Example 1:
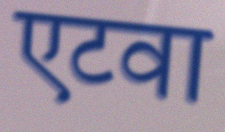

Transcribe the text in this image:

एटवा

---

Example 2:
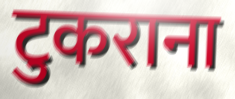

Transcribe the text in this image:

टुकराना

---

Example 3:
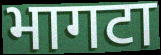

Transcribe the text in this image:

भागटा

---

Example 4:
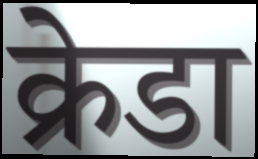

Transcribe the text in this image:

क्रेडा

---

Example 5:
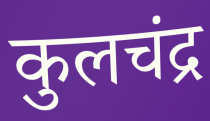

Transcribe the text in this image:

कुलचंद्र